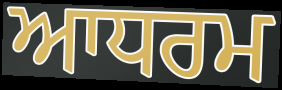
ਆਧਰਮ